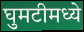
घुमटीमध्ये